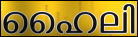
ഹൈലി